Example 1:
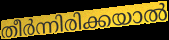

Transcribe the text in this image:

തീർന്നിരിക്കയാൽ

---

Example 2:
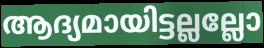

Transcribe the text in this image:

ആദ്യമായിട്ടല്ലല്ലോ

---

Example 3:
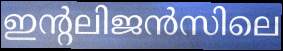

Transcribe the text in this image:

ഇന്റലിജൻസിലെ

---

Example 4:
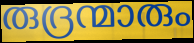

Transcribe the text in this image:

രുദ്രന്മാരും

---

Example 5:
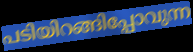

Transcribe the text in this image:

പടിയിറങ്ങിപ്പോവുന്ന